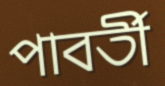
পাবর্তী